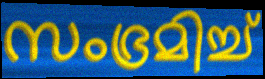
സംഭ്രമിച്ച്